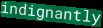
indignantly